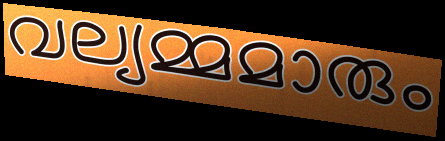
വല്യമ്മമാരും